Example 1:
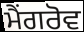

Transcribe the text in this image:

ਮੈਂਗਰੋਵ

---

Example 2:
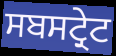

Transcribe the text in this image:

ਸਬਸਟ੍ਰੇਟ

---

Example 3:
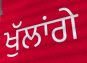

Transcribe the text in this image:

ਖੁੱਲਾਂਗੇ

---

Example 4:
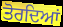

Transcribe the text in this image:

ਤੋਰਦਿਆਂ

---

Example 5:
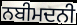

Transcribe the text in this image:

ਨਬੀਮਦਨੀ